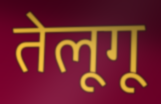
तेलूगू